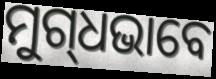
ମୁଗ୍‌ଧଭାବେ